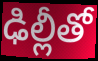
ఢిల్లీతో